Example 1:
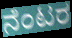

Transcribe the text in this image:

ನೆಂಟರ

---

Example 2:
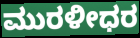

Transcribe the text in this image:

ಮುರಳೀಧರ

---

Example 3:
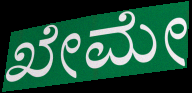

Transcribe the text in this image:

ಖೇಮೇ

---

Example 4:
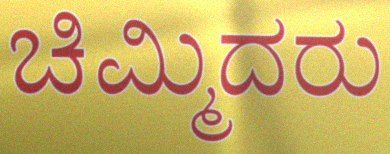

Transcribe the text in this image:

ಚಿಮ್ಮಿದರು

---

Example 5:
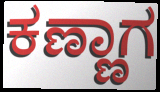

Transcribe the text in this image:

ಕಣ್ಣಾಗ